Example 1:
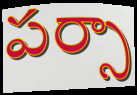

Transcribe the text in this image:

పర్సా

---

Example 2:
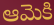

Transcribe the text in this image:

ఆమెకి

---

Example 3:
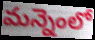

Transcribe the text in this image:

మన్నెంలో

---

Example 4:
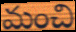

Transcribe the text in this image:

మంచి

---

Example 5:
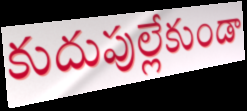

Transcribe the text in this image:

కుదుపుల్లేకుండా